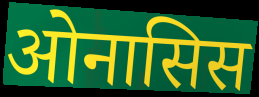
ओनासिस